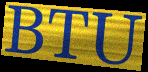
BTU